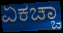
ಏಕಚ್ಚಾ